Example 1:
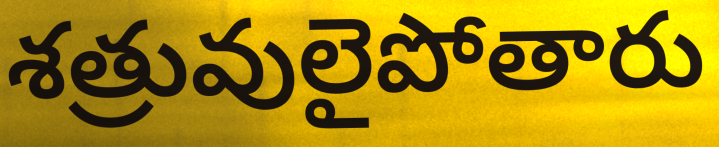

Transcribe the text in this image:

శత్రువులైపోతారు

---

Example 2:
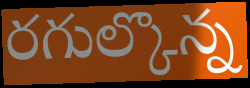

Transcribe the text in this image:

రగుల్కొన్న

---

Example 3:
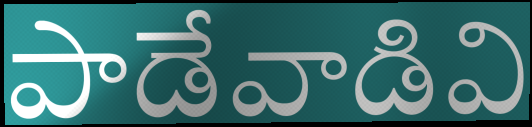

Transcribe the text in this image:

పాడేవాడివి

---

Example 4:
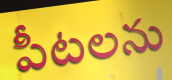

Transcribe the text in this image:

పీటలను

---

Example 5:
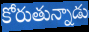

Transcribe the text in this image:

కోరుతున్నాడు